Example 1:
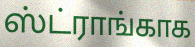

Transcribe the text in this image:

ஸ்ட்ராங்காக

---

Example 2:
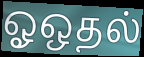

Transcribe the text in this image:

ஓஒதல்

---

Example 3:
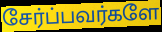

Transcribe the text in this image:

சேர்ப்பவர்களே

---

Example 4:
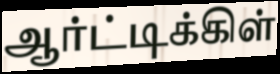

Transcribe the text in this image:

ஆர்ட்டிக்கிள்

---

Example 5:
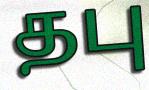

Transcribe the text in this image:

தபு